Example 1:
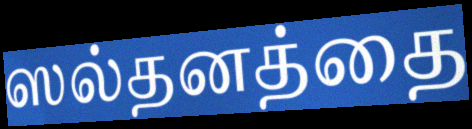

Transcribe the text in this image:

ஸல்தனத்தை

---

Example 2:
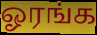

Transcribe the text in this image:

ஓரங்க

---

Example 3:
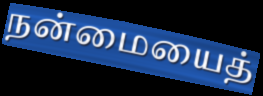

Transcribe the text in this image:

நன்மையைத்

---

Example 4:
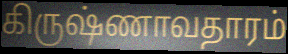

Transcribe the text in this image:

கிருஷ்ணாவதாரம்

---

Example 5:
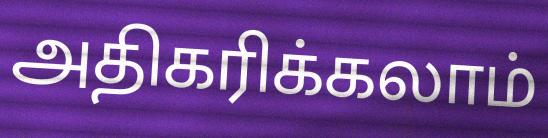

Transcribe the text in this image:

அதிகரிக்கலாம்